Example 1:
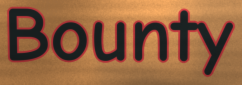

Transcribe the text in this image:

Bounty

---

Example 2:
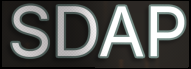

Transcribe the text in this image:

SDAP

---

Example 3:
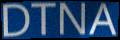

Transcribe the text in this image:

DTNA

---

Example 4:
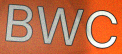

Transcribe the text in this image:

BWC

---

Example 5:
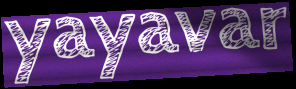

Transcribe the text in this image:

yayavar